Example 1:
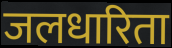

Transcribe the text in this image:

जलधारिता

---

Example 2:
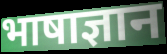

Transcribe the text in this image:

भाषाज्ञान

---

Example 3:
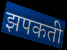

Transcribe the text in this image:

झपकती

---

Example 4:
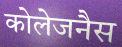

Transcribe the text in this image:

कोलेजनैस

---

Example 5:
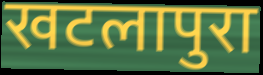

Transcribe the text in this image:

खटलापुरा